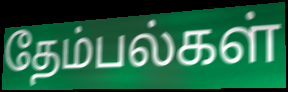
தேம்பல்கள்